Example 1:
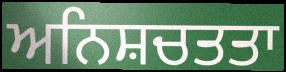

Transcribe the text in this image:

ਅਨਿਸ਼ਚਤਤਾ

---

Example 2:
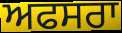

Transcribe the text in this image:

ਅਫਸਰਾ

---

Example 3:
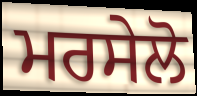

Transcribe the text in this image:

ਮਰਸੇਲੋ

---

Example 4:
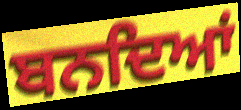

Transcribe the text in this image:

ਬਨਦਿਆਂ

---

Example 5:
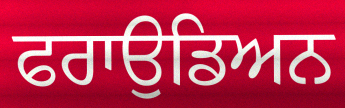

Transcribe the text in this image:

ਫਰਾਉਡਿਅਨ